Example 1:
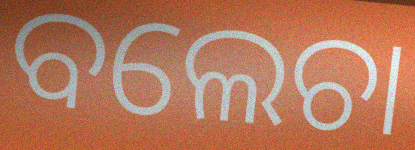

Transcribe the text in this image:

ବଲେଚା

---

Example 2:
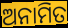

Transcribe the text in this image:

ଅନାମିତ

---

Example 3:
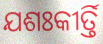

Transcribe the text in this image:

ଯଶଃକୀର୍ତ୍ତି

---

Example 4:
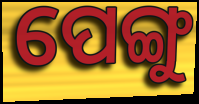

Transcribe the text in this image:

ପେଙ୍ଗୁ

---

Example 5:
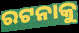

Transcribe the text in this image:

ରଟନାକୁ